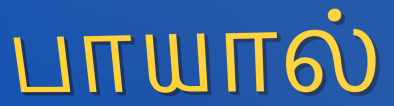
பாயால்